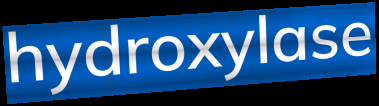
hydroxylase